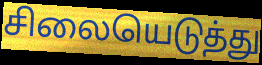
சிலையெடுத்து